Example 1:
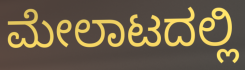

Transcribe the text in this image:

ಮೇಲಾಟದಲ್ಲಿ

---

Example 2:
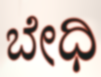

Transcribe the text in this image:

ಬೇಧಿ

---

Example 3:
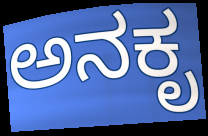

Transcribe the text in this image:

ಅನಕೃ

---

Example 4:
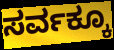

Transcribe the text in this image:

ಸರ್ವಕ್ಕೂ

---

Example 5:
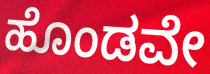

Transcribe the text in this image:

ಹೊಂಡವೇ